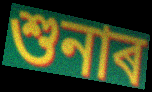
শুনাৰ